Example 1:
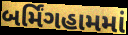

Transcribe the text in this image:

બર્મિંગહામમાં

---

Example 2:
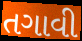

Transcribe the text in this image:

તગાવી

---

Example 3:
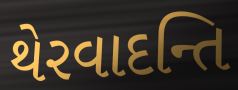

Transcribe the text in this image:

થેરવાદન્તિ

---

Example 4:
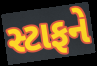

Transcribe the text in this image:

સ્ટાફને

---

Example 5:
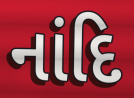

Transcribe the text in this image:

નાંદિ